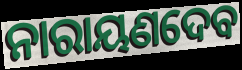
ନାରାୟଣଦେବ